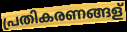
പ്രതികരണങ്ങള്